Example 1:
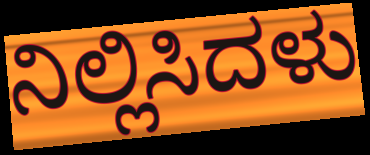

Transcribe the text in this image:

ನಿಲ್ಲಿಸಿದಳು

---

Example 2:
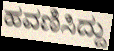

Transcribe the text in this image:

ಹವಣಿಸಿದ್ದು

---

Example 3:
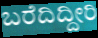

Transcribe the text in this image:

ಬರೆದಿದ್ದೀರಿ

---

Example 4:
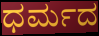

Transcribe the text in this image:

ಧರ್ಮದ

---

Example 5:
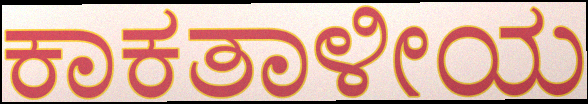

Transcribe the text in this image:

ಕಾಕತಾಳೀಯ